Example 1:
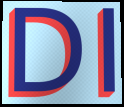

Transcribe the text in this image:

DI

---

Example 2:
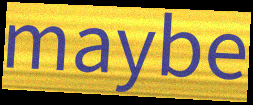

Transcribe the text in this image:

maybe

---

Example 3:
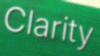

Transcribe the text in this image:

Clarity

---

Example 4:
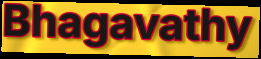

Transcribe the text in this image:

Bhagavathy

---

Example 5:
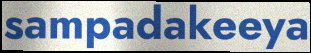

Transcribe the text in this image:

sampadakeeya